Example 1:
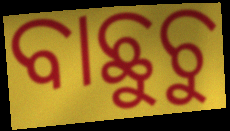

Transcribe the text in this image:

ବାଛୁଚୁ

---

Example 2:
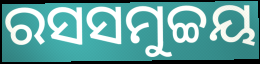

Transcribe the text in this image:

ରସସମୁଚ୍ଚୟ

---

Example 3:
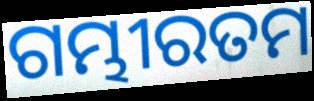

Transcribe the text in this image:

ଗମ୍ଭୀରତମ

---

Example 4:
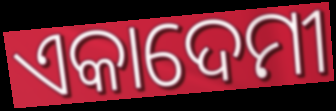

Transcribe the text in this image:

ଏକାଦେମୀ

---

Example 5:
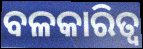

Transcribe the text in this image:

ବଳକାରିତ୍ୱ